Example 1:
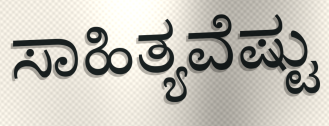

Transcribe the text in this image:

ಸಾಹಿತ್ಯವೆಷ್ಟು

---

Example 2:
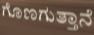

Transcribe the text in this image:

ಗೊಣಗುತ್ತಾನೆ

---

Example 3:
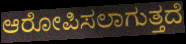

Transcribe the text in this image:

ಆರೋಪಿಸಲಾಗುತ್ತದೆ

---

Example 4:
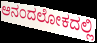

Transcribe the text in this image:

ಆನಂದಲೋಕದಲ್ಲಿ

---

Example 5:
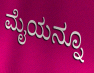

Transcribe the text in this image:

ಮೈಯನ್ನೂ